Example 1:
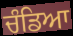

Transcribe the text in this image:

ਚੰਡਿਆ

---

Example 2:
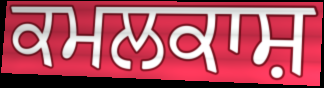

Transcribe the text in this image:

ਕਮਲਕਾਸ਼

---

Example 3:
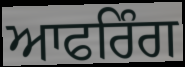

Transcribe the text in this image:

ਆਫਰਿੰਗ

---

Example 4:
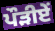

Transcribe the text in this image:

ਪੌੜੀਏਂ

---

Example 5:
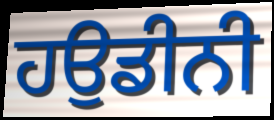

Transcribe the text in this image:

ਹਉਡੀਨੀ